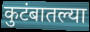
कुटंबातल्या